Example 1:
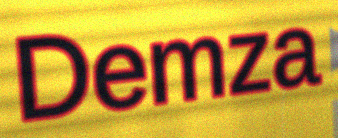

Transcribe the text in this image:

Demza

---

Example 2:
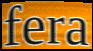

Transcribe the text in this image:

fera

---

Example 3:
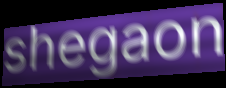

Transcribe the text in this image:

shegaon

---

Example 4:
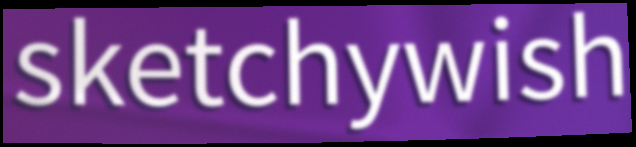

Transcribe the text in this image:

sketchywish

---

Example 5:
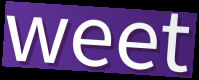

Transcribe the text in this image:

weet